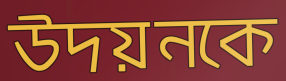
উদয়নকে